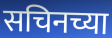
सचिनच्या